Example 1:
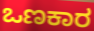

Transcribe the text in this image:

ಒಣಕಾರ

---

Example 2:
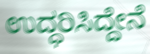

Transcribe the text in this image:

ಉದ್ಧರಿಸಿದ್ದೇನೆ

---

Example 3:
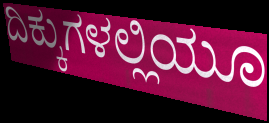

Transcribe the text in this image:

ದಿಕ್ಕುಗಳಲ್ಲಿಯೂ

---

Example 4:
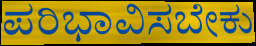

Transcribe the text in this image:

ಪರಿಭಾವಿಸಬೇಕು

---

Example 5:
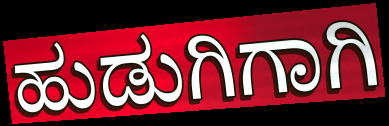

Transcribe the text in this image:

ಹುಡುಗಿಗಾಗಿ